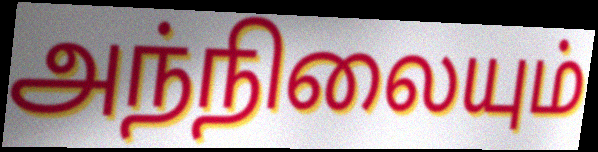
அந்நிலையும்